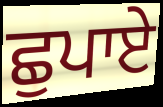
ਛੁਪਾਏ